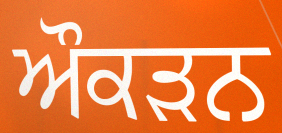
ਔਕੜਨ